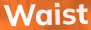
Waist